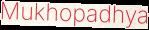
Mukhopadhya